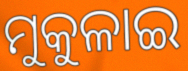
ମୁକୁଳାଇ